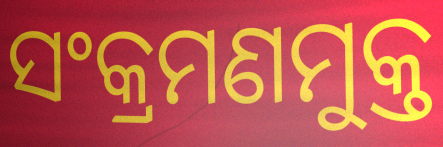
ସଂକ୍ରମଣମୁକ୍ତ